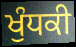
ਖੁੰਧਕੀ